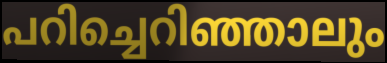
പറിച്ചെറിഞ്ഞാലും